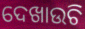
ଦେଖାଉଚି